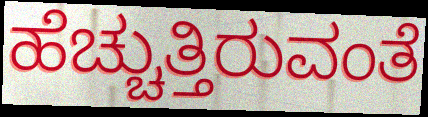
ಹೆಚ್ಚುತ್ತಿರುವಂತೆ